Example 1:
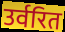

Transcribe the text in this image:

उर्वरित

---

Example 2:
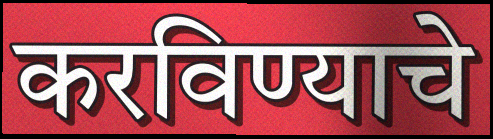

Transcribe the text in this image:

करविण्याचे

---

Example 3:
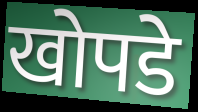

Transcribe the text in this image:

खोपडे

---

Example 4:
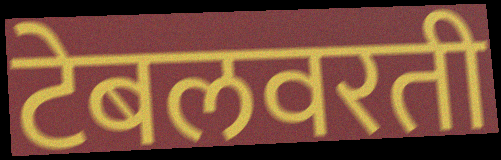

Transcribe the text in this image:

टेबलवरती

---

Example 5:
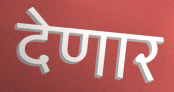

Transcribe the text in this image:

देणार